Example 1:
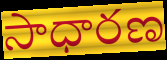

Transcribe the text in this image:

సాధారణ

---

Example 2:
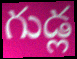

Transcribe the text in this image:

గుడ్ల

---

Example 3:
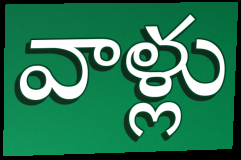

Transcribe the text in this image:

వాళ్లు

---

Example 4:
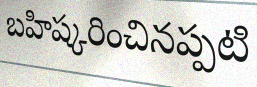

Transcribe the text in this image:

బహిష్కరించినప్పటి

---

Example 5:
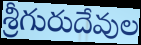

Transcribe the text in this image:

శ్రీగురుదేవుల